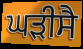
ਘੜੀਸੈ